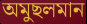
অমুছলমান